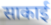
साकाई